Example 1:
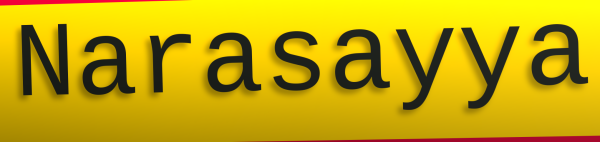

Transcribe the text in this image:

Narasayya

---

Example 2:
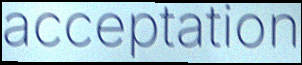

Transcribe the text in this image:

acceptation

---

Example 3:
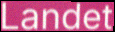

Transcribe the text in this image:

Landet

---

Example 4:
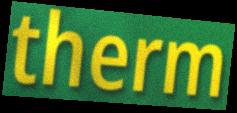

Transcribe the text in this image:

therm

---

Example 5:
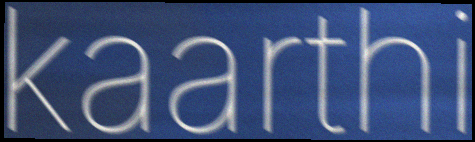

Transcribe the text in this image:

kaarthi